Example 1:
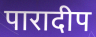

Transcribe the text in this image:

पारादीप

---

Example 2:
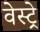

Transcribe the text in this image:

वेस्ट्रे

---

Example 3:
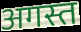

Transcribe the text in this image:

अगस्‍त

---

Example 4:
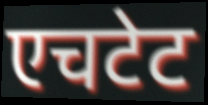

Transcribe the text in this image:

एचटेट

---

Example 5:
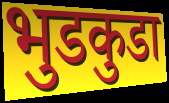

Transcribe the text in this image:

भुडकुडा